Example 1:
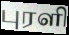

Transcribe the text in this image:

புரளி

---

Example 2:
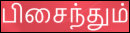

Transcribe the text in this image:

பிசைந்தும்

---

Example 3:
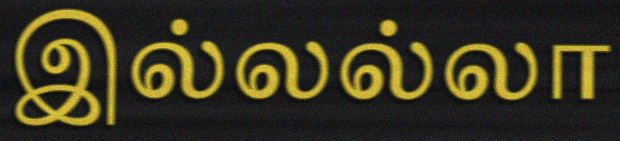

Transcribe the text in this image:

இல்லல்லா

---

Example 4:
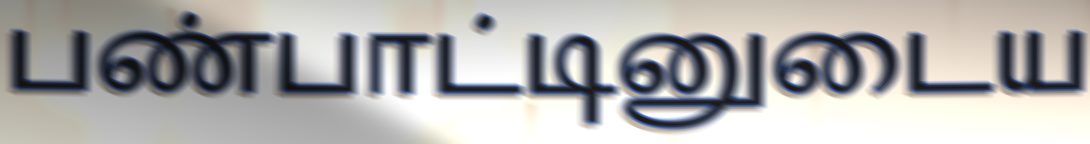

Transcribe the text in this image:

பண்பாட்டினுடைய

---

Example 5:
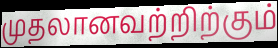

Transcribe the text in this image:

முதலானவற்றிற்கும்